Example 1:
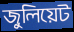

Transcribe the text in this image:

জুলিয়েট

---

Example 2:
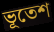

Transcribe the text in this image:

ভূতেশ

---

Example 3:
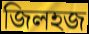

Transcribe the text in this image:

জিলহজ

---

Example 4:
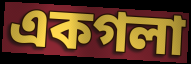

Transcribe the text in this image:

একগলা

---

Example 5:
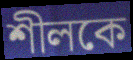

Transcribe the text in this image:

শীলকে